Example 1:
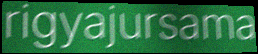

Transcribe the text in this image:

rigyajursama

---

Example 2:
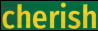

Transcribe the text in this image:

cherish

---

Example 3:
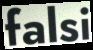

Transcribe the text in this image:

falsi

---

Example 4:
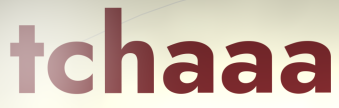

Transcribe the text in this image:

tchaaa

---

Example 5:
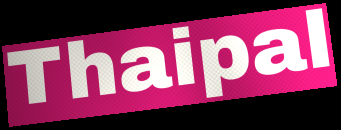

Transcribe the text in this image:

Thaipal